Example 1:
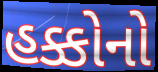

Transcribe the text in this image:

હક્કોનો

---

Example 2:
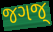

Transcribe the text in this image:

જગજ્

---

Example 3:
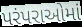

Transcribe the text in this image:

પરંપરાઓમાં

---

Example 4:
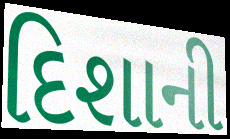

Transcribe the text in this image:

દિશાની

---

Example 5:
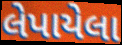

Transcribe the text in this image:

લેપાયેલા